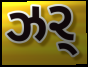
ઝર્